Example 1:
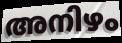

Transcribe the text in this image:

അനിഴം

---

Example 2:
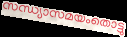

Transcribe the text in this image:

സന്ധ്യാസമയംതൊട്ടു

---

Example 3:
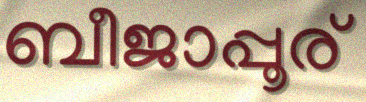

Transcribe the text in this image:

ബീജാപ്പൂര്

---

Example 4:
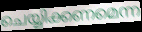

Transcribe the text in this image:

ചെയ്യിക്കണമെന്ന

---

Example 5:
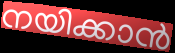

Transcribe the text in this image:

നയിക്കാൻ